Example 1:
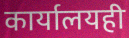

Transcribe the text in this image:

कार्यालयही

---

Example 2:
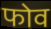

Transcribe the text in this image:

फोव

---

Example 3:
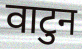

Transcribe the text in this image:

वाटुन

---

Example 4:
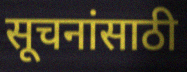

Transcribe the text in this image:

सूचनांसाठी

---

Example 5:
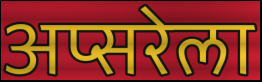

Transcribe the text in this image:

अप्सरेला